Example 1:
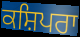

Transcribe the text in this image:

ਕਸ਼ਿਪਰਾ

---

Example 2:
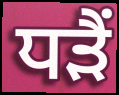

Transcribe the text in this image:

ਧੜੈਂ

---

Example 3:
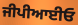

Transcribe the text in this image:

ਜੀਪੀਆਈਓ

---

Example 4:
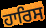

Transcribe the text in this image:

ਹਾਰਿਸ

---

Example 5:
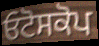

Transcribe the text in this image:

ਓਟੋਸਕੋਪ